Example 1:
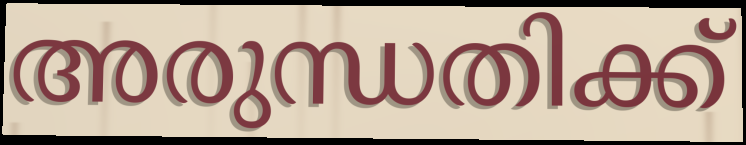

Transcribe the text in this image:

അരുന്ധതിക്ക്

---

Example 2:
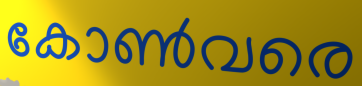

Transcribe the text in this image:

കോൺവരെ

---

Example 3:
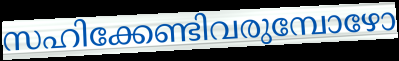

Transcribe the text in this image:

സഹിക്കേണ്ടിവരുമ്പോഴോ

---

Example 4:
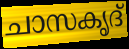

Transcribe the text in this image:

ചാസകൃദ്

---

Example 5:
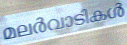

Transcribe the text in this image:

മലർവാടികൾ